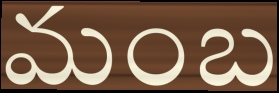
మంబ